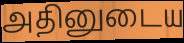
அதினுடைய